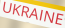
UKRAINE